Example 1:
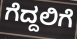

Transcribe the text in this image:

ಗೆದ್ದಲಿಗೆ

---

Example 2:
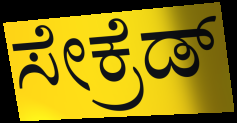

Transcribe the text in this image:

ಸೇಕ್ರೆಡ್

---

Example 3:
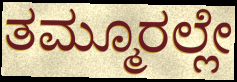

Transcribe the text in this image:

ತಮ್ಮೂರಲ್ಲೇ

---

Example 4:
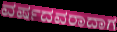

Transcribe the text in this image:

ವರ್ಷದವರಾದಾಗ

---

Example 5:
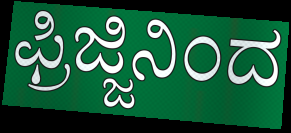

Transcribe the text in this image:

ಫ್ರಿಜ್ಜಿನಿಂದ